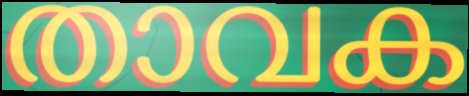
താവക